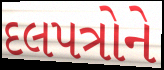
દલપત્રોને